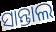
ସାନ୍ତାଲ